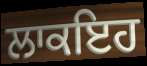
ਲਾਕਇਹ